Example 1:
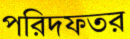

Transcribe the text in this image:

পরিদফতর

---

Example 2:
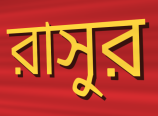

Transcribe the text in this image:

রাসুর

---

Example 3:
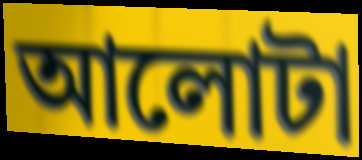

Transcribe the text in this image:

আলোটা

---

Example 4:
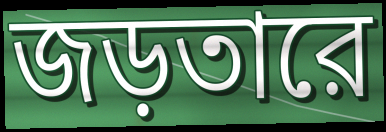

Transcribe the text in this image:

জড়তারে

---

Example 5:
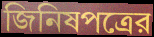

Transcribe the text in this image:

জিনিষপত্রের